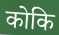
कोकि